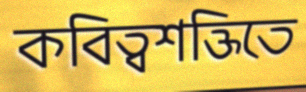
কবিত্বশক্তিতে